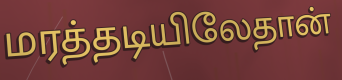
மரத்தடியிலேதான்